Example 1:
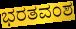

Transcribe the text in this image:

ಭರತವಂಶ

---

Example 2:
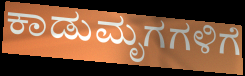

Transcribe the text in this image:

ಕಾಡುಮೃಗಗಳಿಗೆ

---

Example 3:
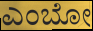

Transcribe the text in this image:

ಎಂಬೋ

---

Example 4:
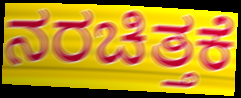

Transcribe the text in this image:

ನರಚಿತ್ತಕೆ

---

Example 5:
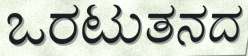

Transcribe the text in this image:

ಒರಟುತನದ